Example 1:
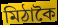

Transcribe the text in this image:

মিঠাকৈ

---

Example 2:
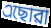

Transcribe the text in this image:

এছোৱা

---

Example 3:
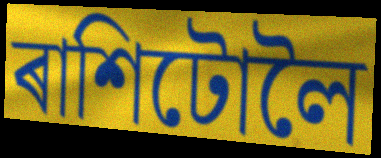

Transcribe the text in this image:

ৰাশিটোলৈ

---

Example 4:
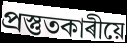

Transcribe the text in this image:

প্ৰস্তুতকাৰীয়ে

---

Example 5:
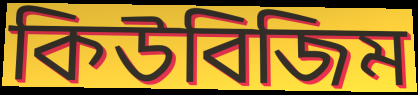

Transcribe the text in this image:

কিউবিজিম